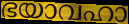
ഭയാവഹാ